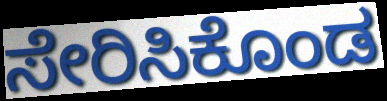
ಸೇರಿಸಿಕೊಂಡ